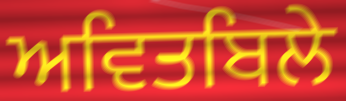
ਅਵਿਤਬਿਲੇ